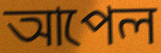
আপেল